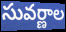
సువర్ణాల